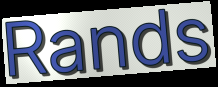
Rands